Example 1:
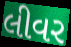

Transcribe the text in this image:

લીવર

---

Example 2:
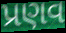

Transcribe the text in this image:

પ્રણવ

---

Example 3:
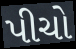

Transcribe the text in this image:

પીચો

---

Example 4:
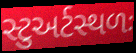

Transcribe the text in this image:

સ્ટુઅર્ટસ્થળઃ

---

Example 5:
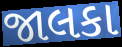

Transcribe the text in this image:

જાલકા